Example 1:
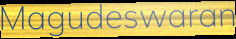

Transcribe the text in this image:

Magudeswaran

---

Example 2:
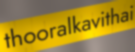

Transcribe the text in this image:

thooralkavithai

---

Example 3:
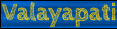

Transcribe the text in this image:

Valayapati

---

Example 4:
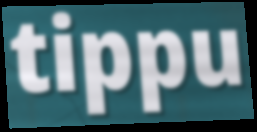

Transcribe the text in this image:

tippu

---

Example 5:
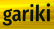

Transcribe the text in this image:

gariki